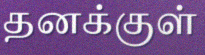
தனக்குள்